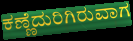
ಕಣ್ಣೆದುರಿಗಿರುವಾಗ